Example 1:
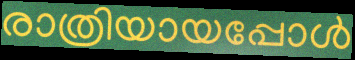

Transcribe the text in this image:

രാത്രിയായപ്പോൾ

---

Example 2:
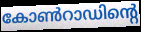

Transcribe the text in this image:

കോൺറാഡിന്റെ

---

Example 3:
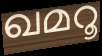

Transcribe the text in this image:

ഖമറൂ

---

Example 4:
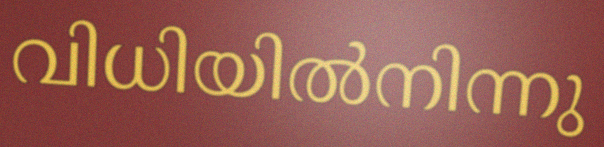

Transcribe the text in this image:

വിധിയിൽനിന്നു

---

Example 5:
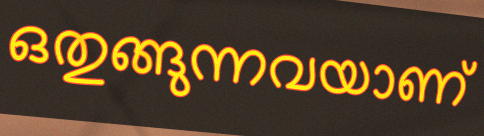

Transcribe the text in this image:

ഒതുങ്ങുന്നവയാണ്